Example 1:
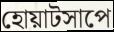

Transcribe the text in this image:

হোয়াটসাপে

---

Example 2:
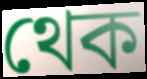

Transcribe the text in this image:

থেক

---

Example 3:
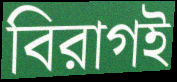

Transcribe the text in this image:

বিরাগই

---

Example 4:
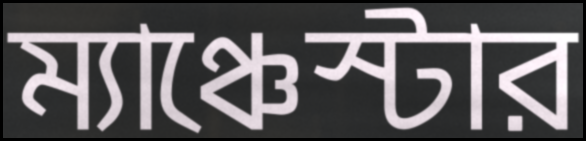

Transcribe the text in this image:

ম্যাঞ্চেস্টার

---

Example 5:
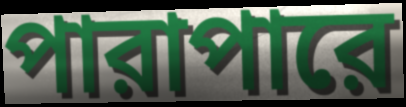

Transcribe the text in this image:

পারাপারে